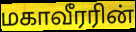
மகாவீரரின்